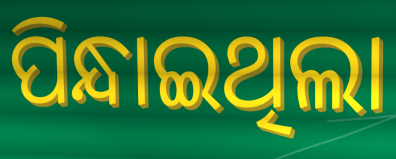
ପିନ୍ଧାଇଥିଲା